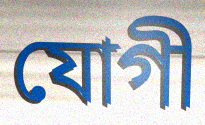
যোগী